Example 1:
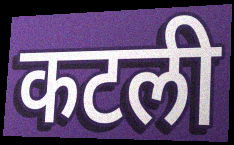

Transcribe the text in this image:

कटली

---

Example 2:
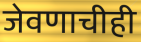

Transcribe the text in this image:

जेवणाचीही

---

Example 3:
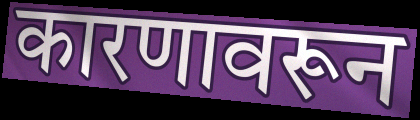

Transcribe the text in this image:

कारणावरून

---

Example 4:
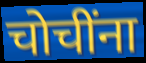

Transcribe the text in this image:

चोचींना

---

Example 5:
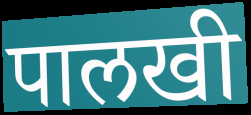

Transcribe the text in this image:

पालखी